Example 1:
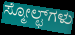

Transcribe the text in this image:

ಸ್ಮೋಲ್ಟ್‌ಗಳು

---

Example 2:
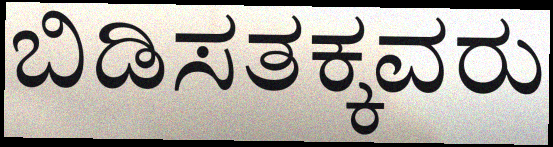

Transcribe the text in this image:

ಬಿಡಿಸತಕ್ಕವರು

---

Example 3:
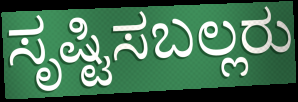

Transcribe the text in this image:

ಸೃಷ್ಟಿಸಬಲ್ಲರು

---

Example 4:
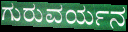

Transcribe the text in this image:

ಗುರುವರ್ಯನ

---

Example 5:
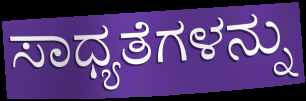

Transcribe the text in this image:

ಸಾಧ್ಯತೆಗಳನ್ನು